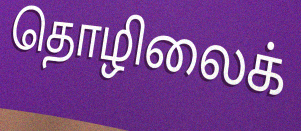
தொழிலைக்